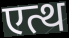
एत्थ